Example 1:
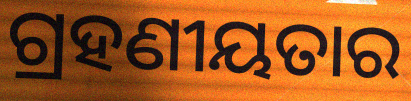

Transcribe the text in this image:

ଗ୍ରହଣୀୟତାର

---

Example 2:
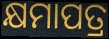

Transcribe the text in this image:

କ୍ଷମାପତ୍ର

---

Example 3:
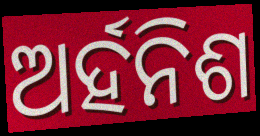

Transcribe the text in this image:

ଅର୍ହନିଶ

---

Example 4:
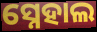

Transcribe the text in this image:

ସ୍ନେହାଲ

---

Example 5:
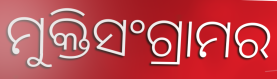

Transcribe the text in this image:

ମୁକ୍ତିସଂଗ୍ରାମର